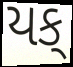
યક્